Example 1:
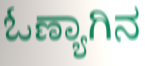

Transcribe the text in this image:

ಓಣ್ಯಾಗಿನ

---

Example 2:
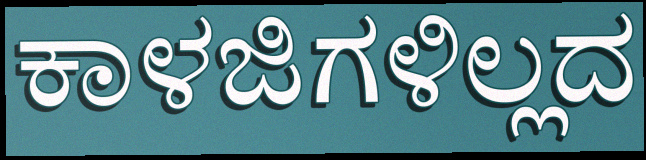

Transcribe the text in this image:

ಕಾಳಜಿಗಳಿಲ್ಲದ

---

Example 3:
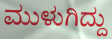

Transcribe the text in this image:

ಮುಳುಗಿದ್ದು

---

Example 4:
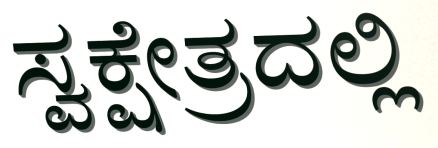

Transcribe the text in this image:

ಸ್ವಕ್ಷೇತ್ರದಲ್ಲಿ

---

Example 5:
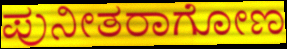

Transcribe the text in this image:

ಪುನೀತರಾಗೋಣ